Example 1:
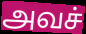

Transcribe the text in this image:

அவச்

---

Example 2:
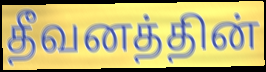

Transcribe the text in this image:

தீவனத்தின்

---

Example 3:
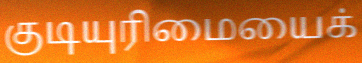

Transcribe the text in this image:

குடியுரிமையைக்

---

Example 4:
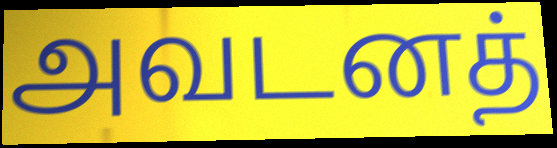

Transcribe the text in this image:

அவடனத்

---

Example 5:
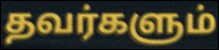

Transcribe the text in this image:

தவர்களும்